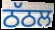
ਠੱਠਲ